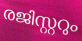
രജിസ്റ്ററും